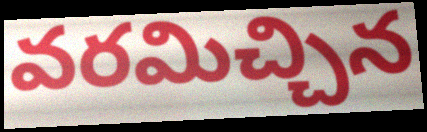
వరమిచ్చిన